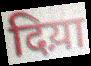
दिय़ा